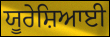
ਯੂਰੇਸ਼ਿਆਈ